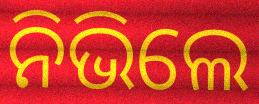
ନିଭିଲେ